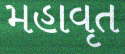
મહાવૃત